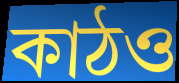
কাঠও